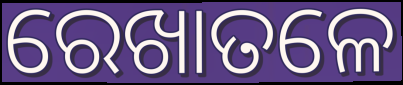
ରେଖାତଳେ